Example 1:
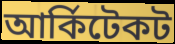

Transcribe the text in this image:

আর্কিটেকট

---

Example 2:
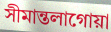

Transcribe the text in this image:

সীমান্তলাগোয়া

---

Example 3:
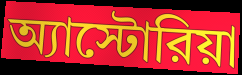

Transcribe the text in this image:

অ্যাস্টোরিয়া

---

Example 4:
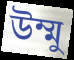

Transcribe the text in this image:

উম্মু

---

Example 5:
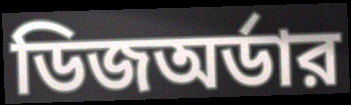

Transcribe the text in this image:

ডিজঅর্ডার